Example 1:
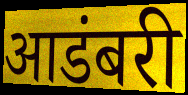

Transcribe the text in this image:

आडंबरी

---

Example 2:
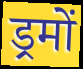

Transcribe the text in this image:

ड्रमों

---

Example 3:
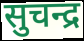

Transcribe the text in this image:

सुचन्द्र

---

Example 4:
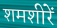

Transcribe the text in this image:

शमशीरें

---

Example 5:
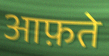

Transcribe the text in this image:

आफ़ते